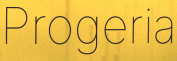
Progeria